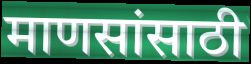
माणसांसाठी